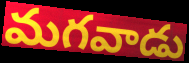
మగవాడు